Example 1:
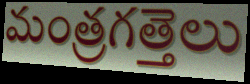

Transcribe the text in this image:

మంత్రగత్తెలు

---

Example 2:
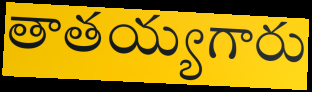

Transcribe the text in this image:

తాతయ్యగారు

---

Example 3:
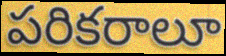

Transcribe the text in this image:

పరికరాలూ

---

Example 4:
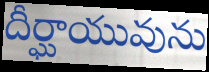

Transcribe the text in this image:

దీర్ఘాయువును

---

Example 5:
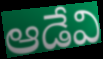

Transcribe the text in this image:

ఆడేవి